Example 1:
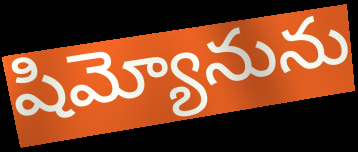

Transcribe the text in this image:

షిమ్యోనును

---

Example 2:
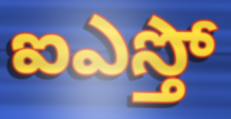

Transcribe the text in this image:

ఐఎస్తో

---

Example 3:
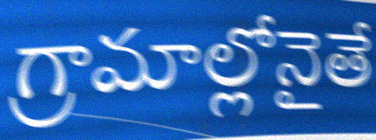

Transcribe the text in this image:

గ్రామాల్లోనైతే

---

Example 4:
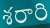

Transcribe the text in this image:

శరారి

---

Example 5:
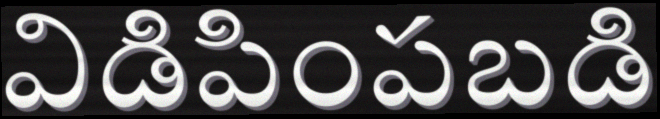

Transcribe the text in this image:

విడిపింపబడి